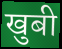
खुबी